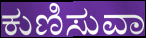
ಕುಣಿಸುವಾ